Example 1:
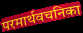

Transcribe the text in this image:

परमार्थवचनिका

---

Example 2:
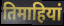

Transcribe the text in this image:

तिमाहियां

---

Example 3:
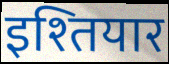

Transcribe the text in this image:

इश्तियार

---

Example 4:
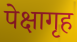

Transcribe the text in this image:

पेक्षागृह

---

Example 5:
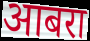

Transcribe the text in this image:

आबरा